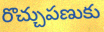
రొచ్చుపణుకు